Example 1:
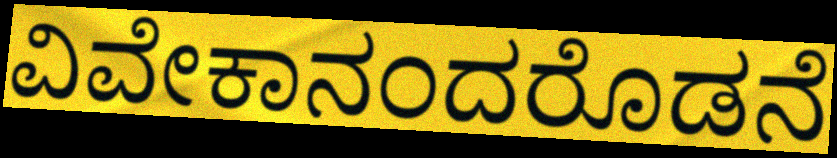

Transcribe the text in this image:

ವಿವೇಕಾನಂದರೊಡನೆ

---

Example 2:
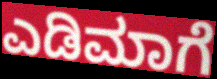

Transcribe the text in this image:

ಎಡಿಮಾಗೆ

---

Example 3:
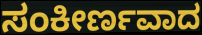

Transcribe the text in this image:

ಸಂಕೀರ್ಣವಾದ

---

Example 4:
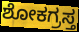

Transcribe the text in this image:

ಶೋಕಗ್ರಸ್ತ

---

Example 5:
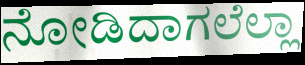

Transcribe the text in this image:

ನೋಡಿದಾಗಲೆಲ್ಲಾ